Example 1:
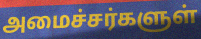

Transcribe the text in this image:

அமைச்சர்களுள்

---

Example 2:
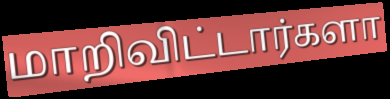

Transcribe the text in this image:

மாறிவிட்டார்களா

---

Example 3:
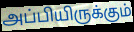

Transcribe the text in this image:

அப்பியிருக்கும்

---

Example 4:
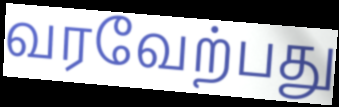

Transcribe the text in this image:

வரவேற்பது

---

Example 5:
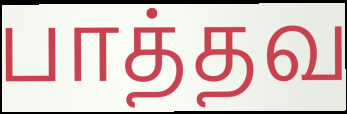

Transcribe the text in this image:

பாத்தவ